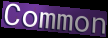
Common